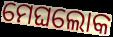
ମେଘଲୋକ